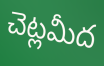
చెట్లమీద